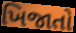
ખિજાતો